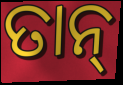
ତାନ୍